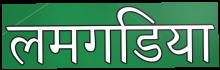
लमगडिया